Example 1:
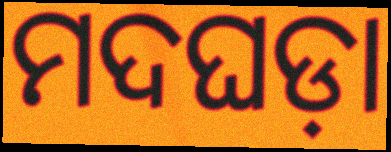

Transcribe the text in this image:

ମଦଘଡ଼ା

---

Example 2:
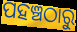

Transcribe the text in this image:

ପହଞ୍ଚଠାରୁ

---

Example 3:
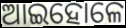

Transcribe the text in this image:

ଆଇହୋଳେ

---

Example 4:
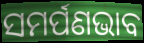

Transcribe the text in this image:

ସମର୍ପଣଭାବ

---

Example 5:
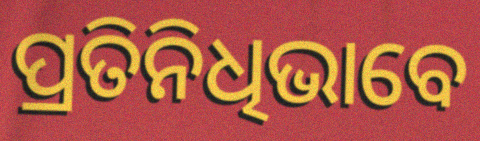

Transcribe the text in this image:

ପ୍ରତିନିଧିଭାବେ